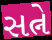
સત્ને